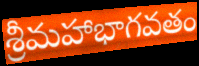
శ్రీమహాభాగవతం